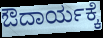
ಔದಾರ್ಯಕ್ಕೆ